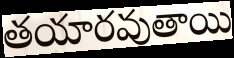
తయారవుతాయి